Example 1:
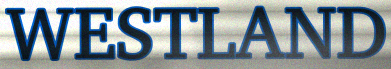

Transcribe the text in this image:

WESTLAND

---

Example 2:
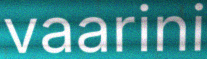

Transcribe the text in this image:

vaarini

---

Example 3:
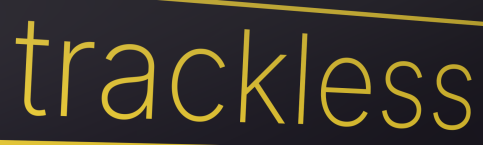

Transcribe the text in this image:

trackless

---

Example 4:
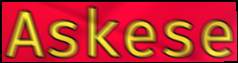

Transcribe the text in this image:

Askese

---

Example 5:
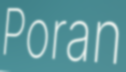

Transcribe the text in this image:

Poran